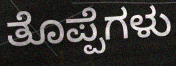
ತೊಪ್ಪೆಗಳು